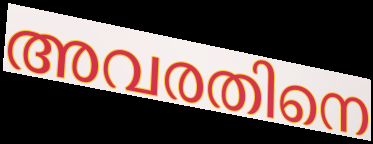
അവരതിനെ